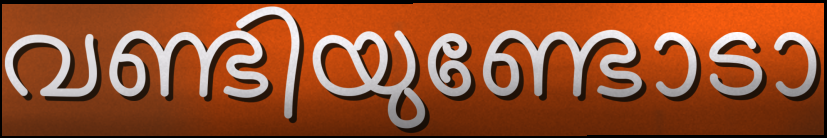
വണ്ടിയുണ്ടോടാ